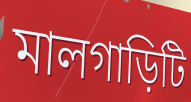
মালগাড়িটি